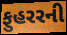
ફુહરરની